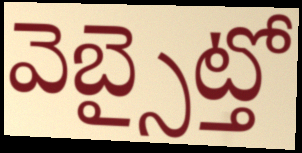
వెబ్సైట్తో